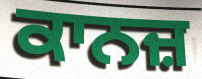
ਕਾਨਜ਼